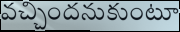
వచ్చిందనుకుంటూ